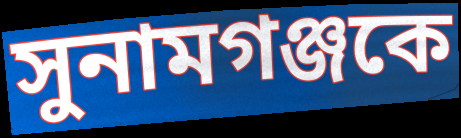
সুনামগঞ্জকে